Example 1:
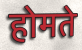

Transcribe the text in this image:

होमते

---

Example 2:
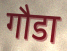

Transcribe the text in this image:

गौडा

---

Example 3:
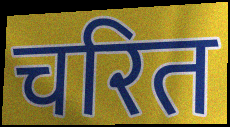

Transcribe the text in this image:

चरित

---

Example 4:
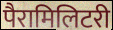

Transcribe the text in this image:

पैरामिलिटरी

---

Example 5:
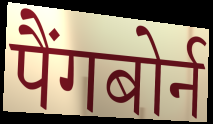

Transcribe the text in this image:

पैंगबोर्न